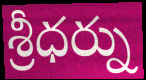
శ్రీధర్ను